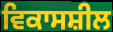
ਵਿਕਾਸਸ਼ੀਲ